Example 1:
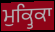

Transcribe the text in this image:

ਮੁਕ੍ਤਿਕਾ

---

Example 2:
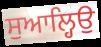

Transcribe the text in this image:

ਸੁਆਲ੍ਹ੍ਹਿਉ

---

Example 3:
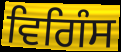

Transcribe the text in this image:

ਵਿਗਿੰਸ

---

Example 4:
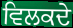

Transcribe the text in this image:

ਵਿਲਕਦੇ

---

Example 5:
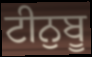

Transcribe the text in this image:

ਟੀਨੁਬੂ